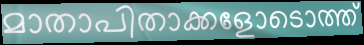
മാതാപിതാക്കളോടൊത്ത്